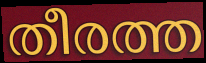
തീരത്ത